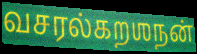
வசரல்கறஶநன்